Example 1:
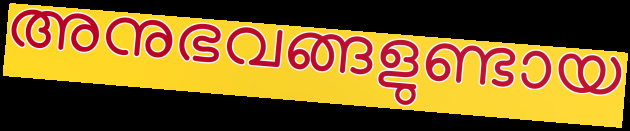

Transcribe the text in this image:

അനുഭവങ്ങളുണ്ടായ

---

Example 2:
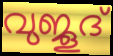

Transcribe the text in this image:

വുജൂദ്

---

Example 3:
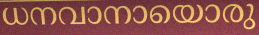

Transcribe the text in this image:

ധനവാനായൊരു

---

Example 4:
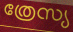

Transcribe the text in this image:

ത്രേസ്യ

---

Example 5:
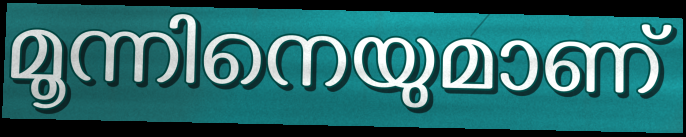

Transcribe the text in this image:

മൂന്നിനെയുമാണ്